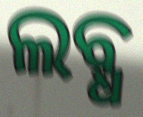
ଲବ୍ଧ